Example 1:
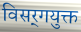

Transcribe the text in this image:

विसर्गयुक्त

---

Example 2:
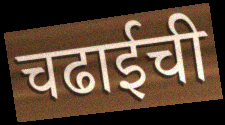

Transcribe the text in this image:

चढाईची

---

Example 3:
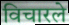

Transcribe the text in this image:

विचारले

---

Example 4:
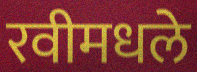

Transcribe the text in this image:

रवीमधले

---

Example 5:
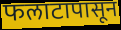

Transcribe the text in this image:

फलाटापासून